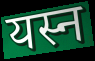
यस्न